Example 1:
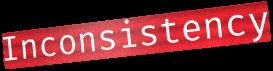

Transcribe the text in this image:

Inconsistency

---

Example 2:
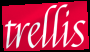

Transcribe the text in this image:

trellis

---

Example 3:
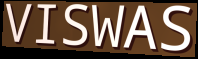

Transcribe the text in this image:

VISWAS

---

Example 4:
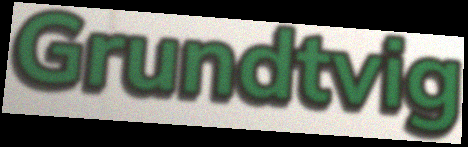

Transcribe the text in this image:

Grundtvig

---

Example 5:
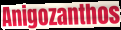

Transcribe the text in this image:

Anigozanthos